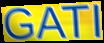
GATI